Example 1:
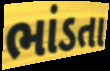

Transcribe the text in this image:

ભાંડતા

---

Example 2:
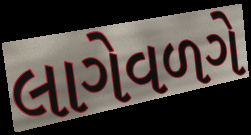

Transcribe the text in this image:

લાગેવળગે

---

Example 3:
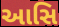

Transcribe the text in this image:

આસિ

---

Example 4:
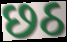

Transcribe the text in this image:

છઠ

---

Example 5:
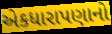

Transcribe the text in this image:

એકધારાપણાનો